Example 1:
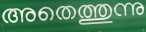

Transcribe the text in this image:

അതെത്തുന്നു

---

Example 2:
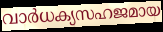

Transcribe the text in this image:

വാർധക്യസഹജമായ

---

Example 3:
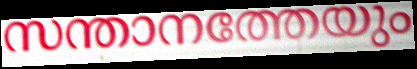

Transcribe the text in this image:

സന്താനത്തേയും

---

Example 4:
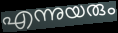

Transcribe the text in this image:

എന്നുയരും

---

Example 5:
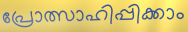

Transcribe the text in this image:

പ്രോത്സാഹിപ്പിക്കാം